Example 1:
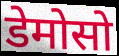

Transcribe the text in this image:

डेमोसो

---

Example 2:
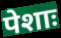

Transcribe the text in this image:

पेशाः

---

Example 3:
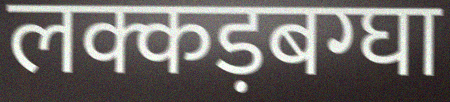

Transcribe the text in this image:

लक्कड़बग्घा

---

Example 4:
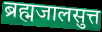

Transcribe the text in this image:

ब्रह्मजालसुत्त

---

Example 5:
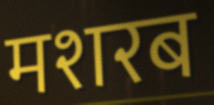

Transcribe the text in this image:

मशरब